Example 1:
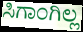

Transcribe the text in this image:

ಸಿಗಾಂಗಿಲ್ಲ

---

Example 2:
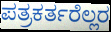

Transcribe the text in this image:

ಪತ್ರಕರ್ತರೆಲ್ಲರ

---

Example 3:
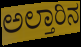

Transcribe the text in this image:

ಅಲ್ತಾರಿನ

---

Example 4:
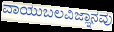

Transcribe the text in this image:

ವಾಯುಬಲವಿಜ್ಞಾನವು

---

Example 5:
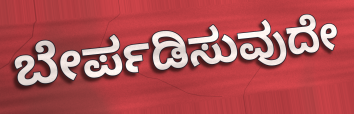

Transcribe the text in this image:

ಬೇರ್ಪಡಿಸುವುದೇ